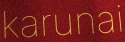
karunai